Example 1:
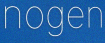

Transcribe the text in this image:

nogen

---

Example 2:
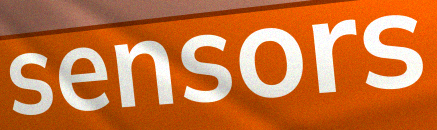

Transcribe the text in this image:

sensors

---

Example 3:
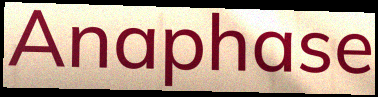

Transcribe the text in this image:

Anaphase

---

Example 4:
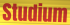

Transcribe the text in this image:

Studium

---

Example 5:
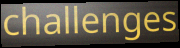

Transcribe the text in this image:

challenges